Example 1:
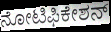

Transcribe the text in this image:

ನೋಟಿಫಿಕೇಶನ್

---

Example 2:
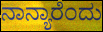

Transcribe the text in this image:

ನಾನ್ಯಾರೆಂದು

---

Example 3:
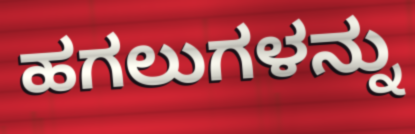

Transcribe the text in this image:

ಹಗಲುಗಳನ್ನು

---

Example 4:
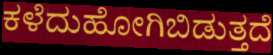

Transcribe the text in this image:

ಕಳೆದುಹೋಗಿಬಿಡುತ್ತದೆ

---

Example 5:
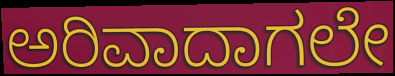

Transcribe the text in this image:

ಅರಿವಾದಾಗಲೇ